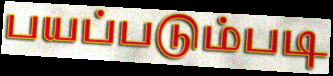
பயப்படும்படி